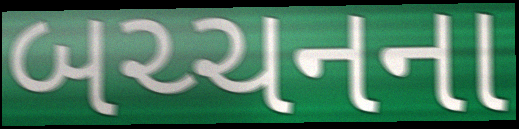
બચ્ચનના